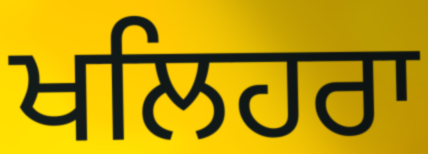
ਖਲਿਹਰਾ